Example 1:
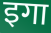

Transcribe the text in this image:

इगा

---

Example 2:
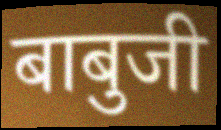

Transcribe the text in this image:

बाबुजी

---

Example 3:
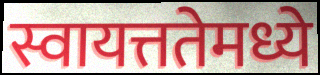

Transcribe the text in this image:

स्वायत्ततेमध्ये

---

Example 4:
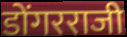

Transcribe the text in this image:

डोंगरराजी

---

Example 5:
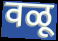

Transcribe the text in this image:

वळू